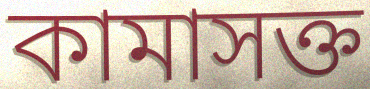
কামাসক্ত